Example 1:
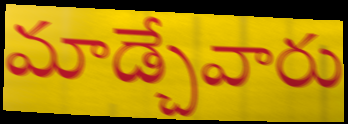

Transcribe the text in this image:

మాడ్చేవారు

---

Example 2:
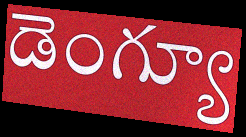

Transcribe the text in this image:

డెంగ్యూ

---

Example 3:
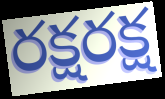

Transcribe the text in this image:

రక్షరక్ష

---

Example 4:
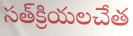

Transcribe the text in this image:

సత్‌క్రియలచేత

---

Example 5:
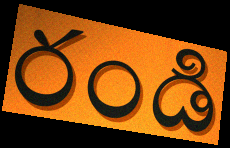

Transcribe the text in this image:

రండి